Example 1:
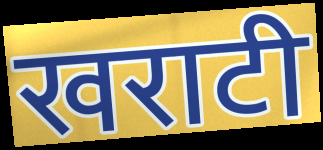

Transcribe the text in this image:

खराटी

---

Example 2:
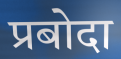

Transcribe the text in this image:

प्रबोदा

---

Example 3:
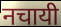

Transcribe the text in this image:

नचायी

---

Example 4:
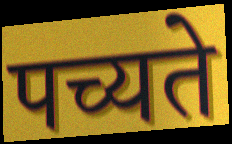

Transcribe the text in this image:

पच्यते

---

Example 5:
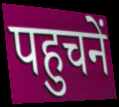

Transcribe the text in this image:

पहुचनें